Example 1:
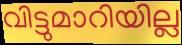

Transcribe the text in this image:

വിട്ടുമാറിയില്ല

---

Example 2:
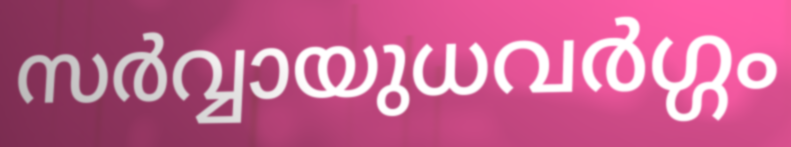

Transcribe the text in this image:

സർവ്വായുധവർഗ്ഗം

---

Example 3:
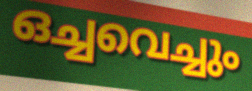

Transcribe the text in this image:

ഒച്ചവെച്ചും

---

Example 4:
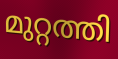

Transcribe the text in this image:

മുറ്റത്തി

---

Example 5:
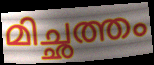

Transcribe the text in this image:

മിച്ഛത്തം